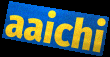
aaichi